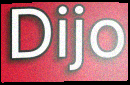
Dijo